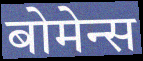
बोमेन्स